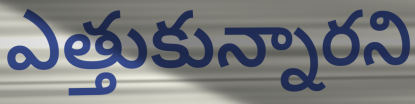
ఎత్తుకున్నారని